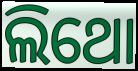
ଲିଥୋ